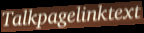
Talkpagelinktext